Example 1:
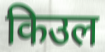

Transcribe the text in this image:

किउल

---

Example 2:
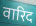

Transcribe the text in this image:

वारिद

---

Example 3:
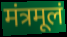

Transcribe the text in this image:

मंत्रमूलं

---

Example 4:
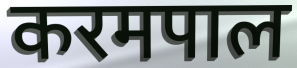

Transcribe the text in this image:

करमपाल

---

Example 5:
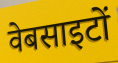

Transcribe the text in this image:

वेबसाइटों